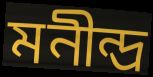
মনীন্দ্র